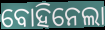
ବୋହିନେଲା